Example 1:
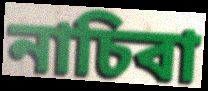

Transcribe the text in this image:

নাচিবা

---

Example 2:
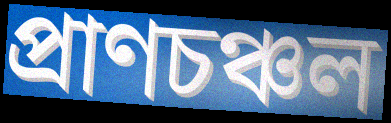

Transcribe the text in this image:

প্ৰাণচঞ্চল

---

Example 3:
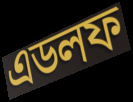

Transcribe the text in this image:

এডলফ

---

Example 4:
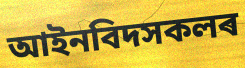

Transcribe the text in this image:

আইনবিদসকলৰ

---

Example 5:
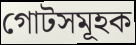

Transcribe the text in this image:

গোটসমূহক